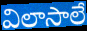
విలాసాలే